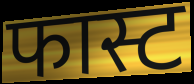
फास्ट